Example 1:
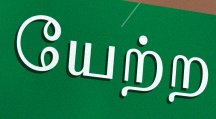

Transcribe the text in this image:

யேற்ற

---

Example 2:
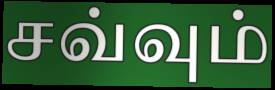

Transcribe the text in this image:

சவ்வும்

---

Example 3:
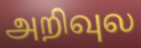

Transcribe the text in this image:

அறிவுல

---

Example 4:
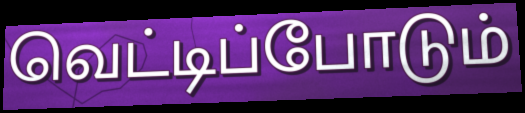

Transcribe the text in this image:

வெட்டிப்போடும்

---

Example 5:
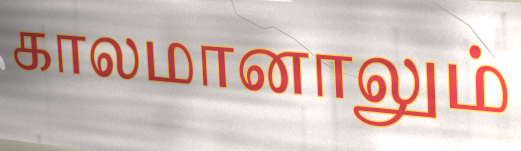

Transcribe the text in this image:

காலமானாலும்